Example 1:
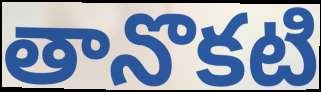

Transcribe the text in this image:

తానొకటి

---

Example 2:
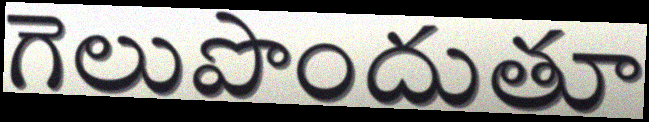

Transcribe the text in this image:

గెలుపొందుతూ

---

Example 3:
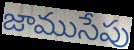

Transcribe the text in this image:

జాముసేపు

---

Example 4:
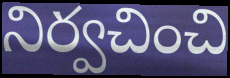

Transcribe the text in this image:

నిర్వచించి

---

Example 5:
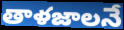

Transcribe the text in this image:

తాళజాలనే